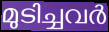
മുടിച്ചവർ